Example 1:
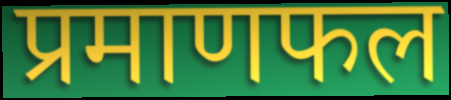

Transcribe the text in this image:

प्रमाणफल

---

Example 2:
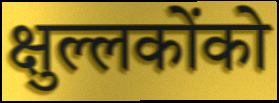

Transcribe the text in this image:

क्षुल्लकोंको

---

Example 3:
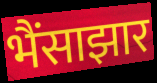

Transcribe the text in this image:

भैंसाझार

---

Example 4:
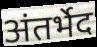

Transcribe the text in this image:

अंतर्भेद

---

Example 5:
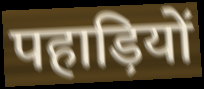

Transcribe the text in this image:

पहाड़ियों